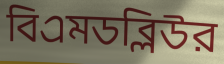
বিএমডব্লিউর